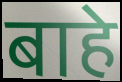
बाहे